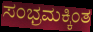
ಸಂಭ್ರಮಕ್ಕಿಂತ